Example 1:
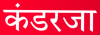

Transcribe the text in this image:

कंडरजा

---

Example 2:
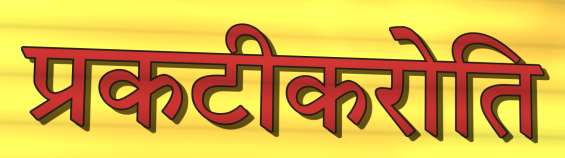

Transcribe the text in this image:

प्रकटीकरोति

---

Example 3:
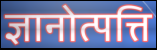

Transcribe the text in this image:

ज्ञानोत्पत्ति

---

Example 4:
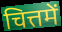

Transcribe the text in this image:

चित्तमें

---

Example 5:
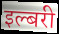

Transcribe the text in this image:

इल्बरी